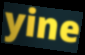
yine